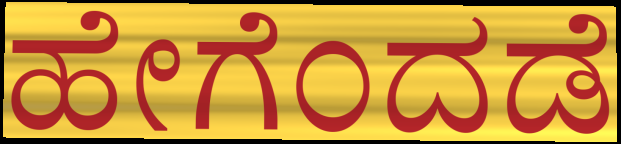
ಹೇಗೆಂದಡೆ